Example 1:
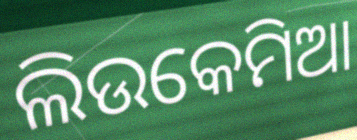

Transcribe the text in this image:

ଲିଉକେମିଆ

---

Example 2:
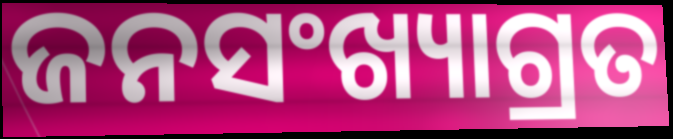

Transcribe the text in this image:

ଜନସଂଖ୍ୟାଗ୍ରତ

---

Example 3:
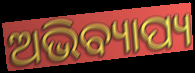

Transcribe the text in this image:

ଅଭିବ୍ୟାପ୍ୟ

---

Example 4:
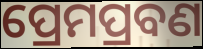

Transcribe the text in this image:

ପ୍ରେମପ୍ରବଣ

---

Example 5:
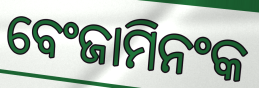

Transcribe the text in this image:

ବେଂଜାମିନଂକ